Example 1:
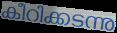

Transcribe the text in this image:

കീറിക്കടന്നു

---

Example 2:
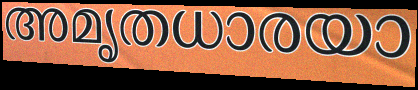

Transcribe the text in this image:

അമൃതധാരയാ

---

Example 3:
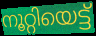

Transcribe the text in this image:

നൂറ്റിയെട്ട്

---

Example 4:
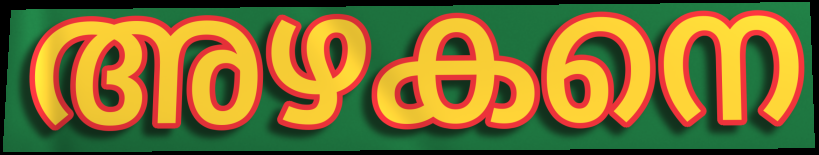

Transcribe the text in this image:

അഴകനെ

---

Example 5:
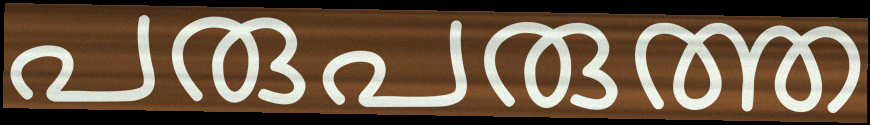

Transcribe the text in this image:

പരുപരുത്ത